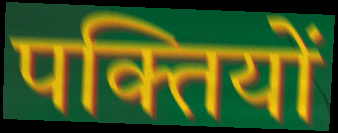
पक्तियों